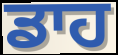
ਡਾਹ